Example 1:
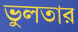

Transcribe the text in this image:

ভুলতার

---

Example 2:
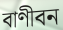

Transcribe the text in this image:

বাণীবন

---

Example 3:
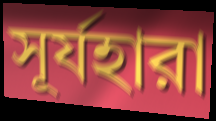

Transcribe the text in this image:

সূর্যহারা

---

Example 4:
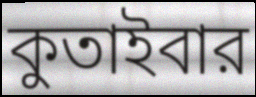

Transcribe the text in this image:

কুতাইবার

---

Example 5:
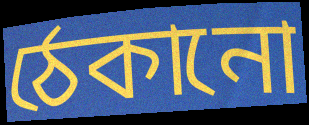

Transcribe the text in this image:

ঠেকানো